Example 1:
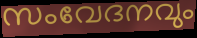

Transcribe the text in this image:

സംവേദനവും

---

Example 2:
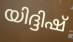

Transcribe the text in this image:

യിദ്ദിഷ്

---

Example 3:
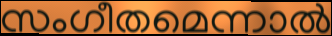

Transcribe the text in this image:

സംഗീതമെന്നാൽ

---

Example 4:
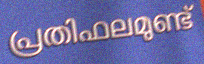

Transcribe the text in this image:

പ്രതിഫലമുണ്ട്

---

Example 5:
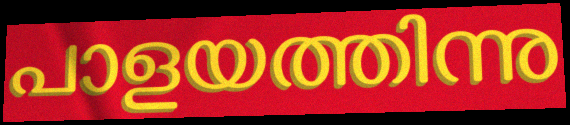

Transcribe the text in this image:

പാളയത്തിന്നു